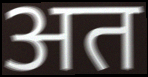
अत